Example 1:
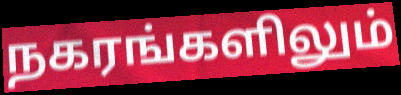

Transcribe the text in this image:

நகரங்களிலும்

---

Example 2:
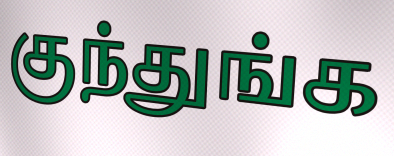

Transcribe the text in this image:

குந்துங்க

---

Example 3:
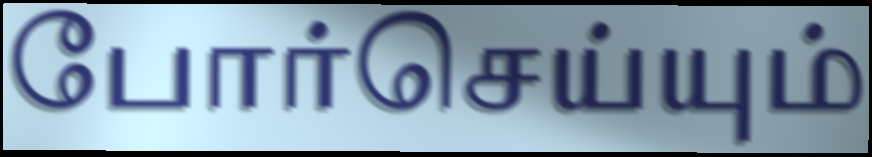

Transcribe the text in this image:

போர்செய்யும்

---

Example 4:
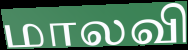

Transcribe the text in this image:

மாலவி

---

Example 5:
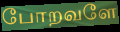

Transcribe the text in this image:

போறவளே